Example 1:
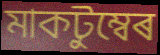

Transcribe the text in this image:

মাকটুম্বেৰ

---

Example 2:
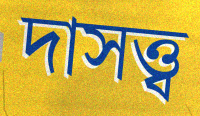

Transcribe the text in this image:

দাসত্ত্ব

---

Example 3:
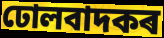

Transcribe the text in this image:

ঢোলবাদকৰ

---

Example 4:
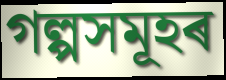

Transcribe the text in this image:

গল্পসমূহৰ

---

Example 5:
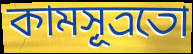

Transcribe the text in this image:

কামসূত্ৰতো